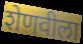
शेणवीला